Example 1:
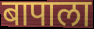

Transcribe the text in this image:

बापाला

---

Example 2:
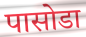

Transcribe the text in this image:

पासोडा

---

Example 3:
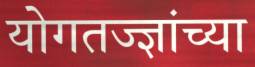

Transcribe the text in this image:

योगतज्ज्ञांच्या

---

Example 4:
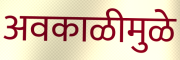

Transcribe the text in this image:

अवकाळीमुळे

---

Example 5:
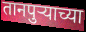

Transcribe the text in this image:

तानपुऱ्याच्या